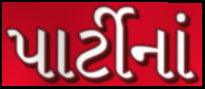
પાર્ટીનાં